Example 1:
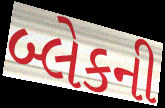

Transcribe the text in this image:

બ્લેકની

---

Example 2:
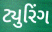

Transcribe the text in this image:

ટ્યુરિંગ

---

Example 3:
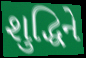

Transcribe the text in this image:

શુદ્ધિને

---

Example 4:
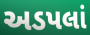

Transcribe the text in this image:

અડપલાં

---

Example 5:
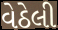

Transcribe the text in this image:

વેઠેલી